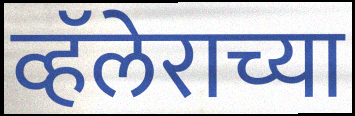
व्हॅलेराच्या